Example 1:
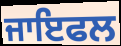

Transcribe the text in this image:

ਜਾਇਫਲ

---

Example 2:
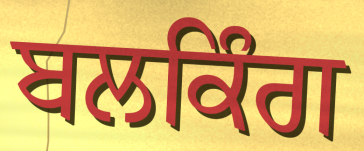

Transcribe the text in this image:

ਬਲਕਿੰਗ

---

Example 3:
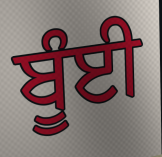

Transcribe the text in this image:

ਬੂੰਈ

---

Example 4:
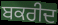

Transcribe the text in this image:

ਬਕਰੀਦ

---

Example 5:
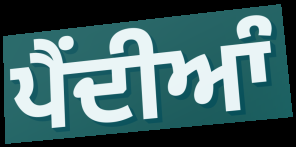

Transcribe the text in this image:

ਪੈੰਦੀਆੰ